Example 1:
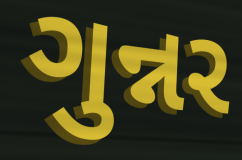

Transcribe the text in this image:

ગુન્નર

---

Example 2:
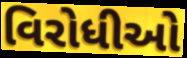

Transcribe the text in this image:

વિરોધીઓ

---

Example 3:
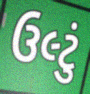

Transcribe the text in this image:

ઉલ્ટું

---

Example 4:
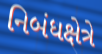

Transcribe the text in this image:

નિબંધક્ષેત્રે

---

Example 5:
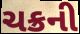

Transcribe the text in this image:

ચક્રની